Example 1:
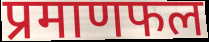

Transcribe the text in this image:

प्रमाणफल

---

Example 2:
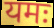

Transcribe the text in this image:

यमः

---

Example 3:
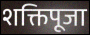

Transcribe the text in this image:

शक्तिपूजा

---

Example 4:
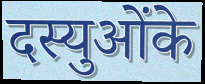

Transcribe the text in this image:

दस्युओंके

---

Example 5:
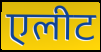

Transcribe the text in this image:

एलीट